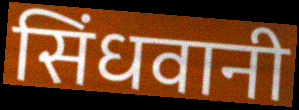
सिंधवानी